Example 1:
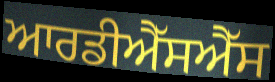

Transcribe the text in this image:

ਆਰਡੀਐੱਸਐੱਸ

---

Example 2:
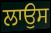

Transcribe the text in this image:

ਲਾਉਸ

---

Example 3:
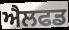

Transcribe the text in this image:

ਐਲਫਡ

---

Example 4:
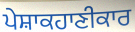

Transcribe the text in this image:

ਪੇਸ਼ਾਕਹਾਣੀਕਾਰ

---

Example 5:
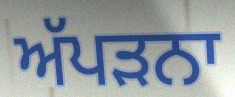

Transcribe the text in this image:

ਅੱਪੜਨਾ